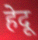
हेदू